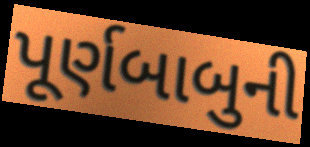
પૂર્ણબાબુની